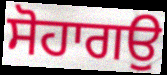
ਸੋਹਾਗਉ